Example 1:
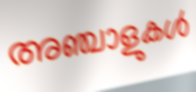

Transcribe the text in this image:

അഞ്ചാളുകൾ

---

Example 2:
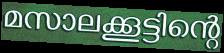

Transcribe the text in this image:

മസാലക്കൂട്ടിന്റെ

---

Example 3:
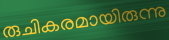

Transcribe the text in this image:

രുചികരമായിരുന്നു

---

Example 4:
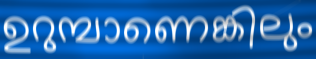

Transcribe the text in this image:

ഉറുമ്പാണെങ്കിലും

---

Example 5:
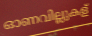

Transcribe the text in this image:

ഓണവില്ലുകള്